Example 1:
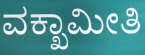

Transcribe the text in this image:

ವಕ್ಖಾಮೀತಿ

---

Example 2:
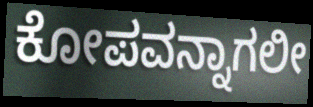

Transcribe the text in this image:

ಕೋಪವನ್ನಾಗಲೀ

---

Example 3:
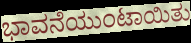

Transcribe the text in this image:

ಭಾವನೆಯುಂಟಾಯಿತು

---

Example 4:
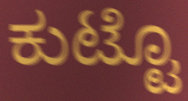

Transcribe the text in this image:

ಕುಟ್ಟೊ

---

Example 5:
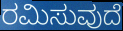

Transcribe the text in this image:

ರಮಿಸುವುದೆ